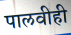
पालवीही